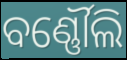
ବର୍ଣ୍ଣୌଲି